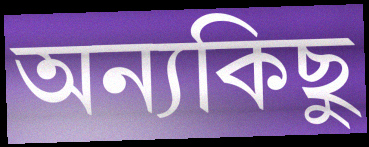
অন্যকিছু